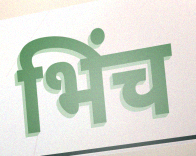
भिंच